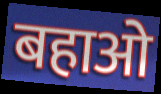
बहाओ